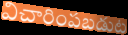
విచారింపబడుట